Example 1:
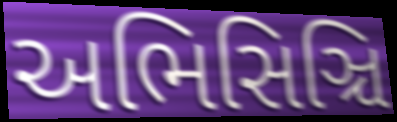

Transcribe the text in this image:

અભિસિઞ્ચિ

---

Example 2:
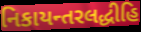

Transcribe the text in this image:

નિકાયન્તરલદ્ધીહિ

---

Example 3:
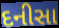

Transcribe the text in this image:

દનીસા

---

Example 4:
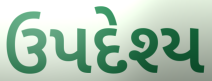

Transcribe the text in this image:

ઉપદેશ્ય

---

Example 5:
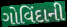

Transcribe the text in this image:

ગોવિંદાની